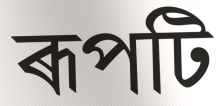
ৰূপটি